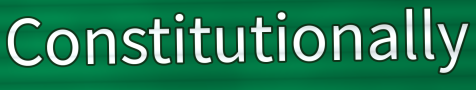
Constitutionally